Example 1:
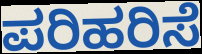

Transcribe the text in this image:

ಪರಿಹರಿಸೆ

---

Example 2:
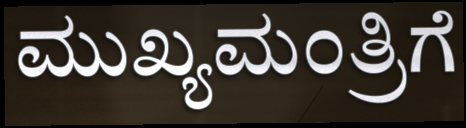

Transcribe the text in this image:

ಮುಖ್ಯಮಂತ್ರಿಗೆ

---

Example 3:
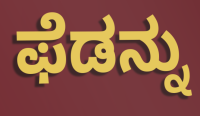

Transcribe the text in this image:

ಫೆಡನ್ನು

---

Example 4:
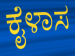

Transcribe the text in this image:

ಕೈಳಾಸ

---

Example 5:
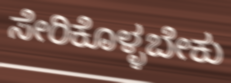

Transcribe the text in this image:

ಸೇರಿಕೊಳ್ಳಬೇಕು